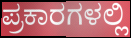
ಪ್ರಕಾರಗಳಲ್ಲಿ